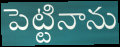
పెట్టినాను